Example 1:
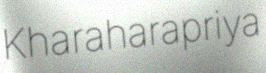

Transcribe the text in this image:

Kharaharapriya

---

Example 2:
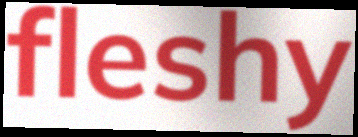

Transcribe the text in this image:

fleshy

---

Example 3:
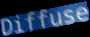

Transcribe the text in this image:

Diffuse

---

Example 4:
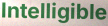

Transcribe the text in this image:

Intelligible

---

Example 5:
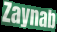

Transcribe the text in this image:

Zaynab